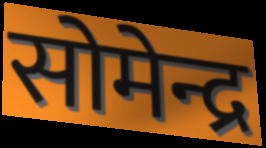
सोमेन्द्र